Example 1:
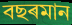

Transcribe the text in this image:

বছৰমান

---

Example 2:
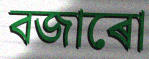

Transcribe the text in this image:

বজাৰো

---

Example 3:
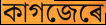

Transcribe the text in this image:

কাগজেৰে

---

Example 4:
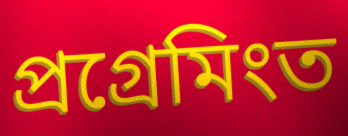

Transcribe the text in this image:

প্ৰগ্ৰেমিংত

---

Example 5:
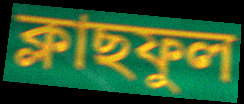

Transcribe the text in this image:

ক্লাছফুল